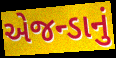
એજન્ડાનું